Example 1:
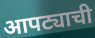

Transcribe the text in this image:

आपट्याची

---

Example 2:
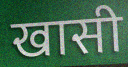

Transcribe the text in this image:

खासी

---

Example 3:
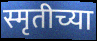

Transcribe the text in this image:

स्मृतीच्या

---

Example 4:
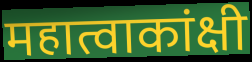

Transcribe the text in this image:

महात्वाकांक्षी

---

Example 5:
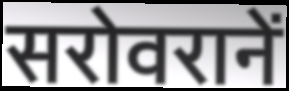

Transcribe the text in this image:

सरोवरानें